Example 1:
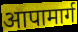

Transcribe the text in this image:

आपामार्ग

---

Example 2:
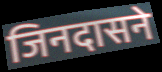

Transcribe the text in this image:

जिनदासने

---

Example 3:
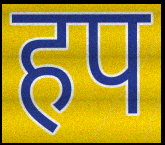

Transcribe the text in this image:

हप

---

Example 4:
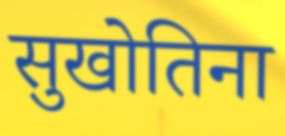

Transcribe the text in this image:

सुखोतिना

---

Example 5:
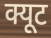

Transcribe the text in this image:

क्यूट